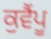
ਕੁਵੈਂਪੂ